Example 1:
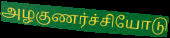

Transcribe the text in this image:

அழகுணர்ச்சியோடு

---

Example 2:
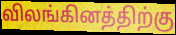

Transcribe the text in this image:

விலங்கினத்திற்கு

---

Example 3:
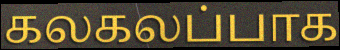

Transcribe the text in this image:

கலகலப்பாக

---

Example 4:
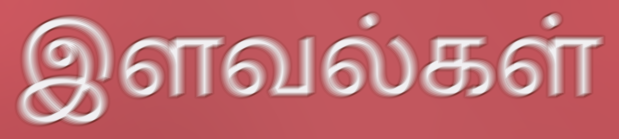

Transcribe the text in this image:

இளவல்கள்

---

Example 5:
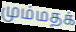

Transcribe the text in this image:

மும்மதக்